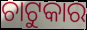
ଚାଟୁକାର